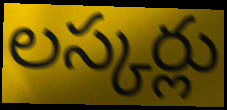
లస్కర్లు